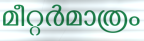
മീറ്റർമാത്രം